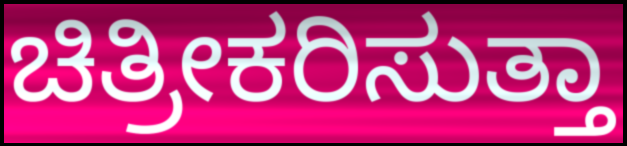
ಚಿತ್ರೀಕರಿಸುತ್ತಾ